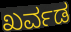
ಖರ್ವಡ